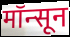
मॉन्सून